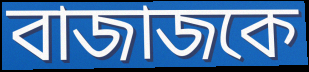
বাজাজকে